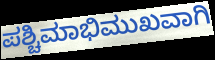
ಪಶ್ಚಿಮಾಭಿಮುಖವಾಗಿ